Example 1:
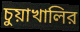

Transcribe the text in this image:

চুয়াখালির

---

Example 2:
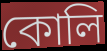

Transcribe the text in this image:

কোলি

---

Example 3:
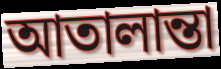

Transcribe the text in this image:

আতালান্তা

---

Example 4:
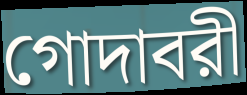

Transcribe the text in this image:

গোদাবরী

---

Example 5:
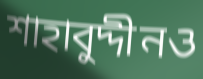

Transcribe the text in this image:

শাহাবুদ্দীনও